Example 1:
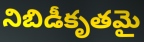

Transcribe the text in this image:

నిబిడీకృతమై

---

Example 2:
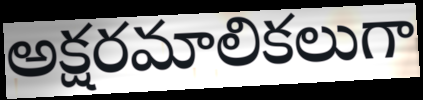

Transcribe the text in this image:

అక్షరమాలికలుగా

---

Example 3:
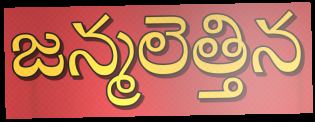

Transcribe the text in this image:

జన్మలెత్తిన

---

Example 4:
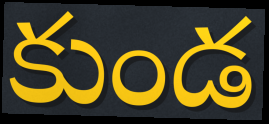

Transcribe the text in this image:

కుండ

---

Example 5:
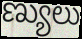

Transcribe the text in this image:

ణ్యులు